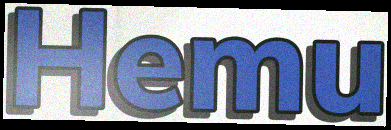
Hemu